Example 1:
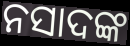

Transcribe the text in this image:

ନସାଦଙ୍କ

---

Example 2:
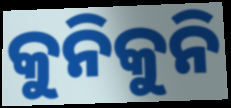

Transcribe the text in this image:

କୁନିକୁନି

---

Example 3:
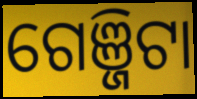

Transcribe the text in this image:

ଗେଞ୍ଜିଟା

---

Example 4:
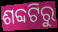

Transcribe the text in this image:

ଶବ୍ଦଟିରୁ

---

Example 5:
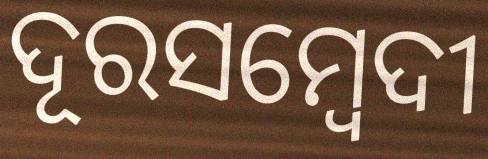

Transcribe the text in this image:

ଦୂରସମ୍ବେଦୀ